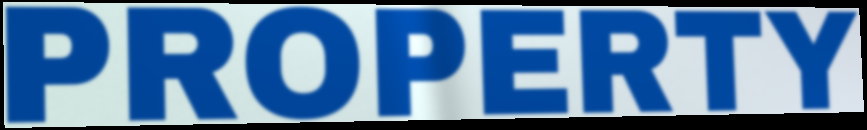
PROPERTY